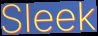
Sleek